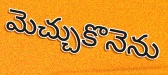
మెచ్చుకొనెను